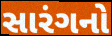
સારંગનો